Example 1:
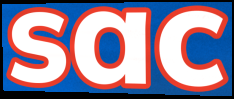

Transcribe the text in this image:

sac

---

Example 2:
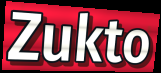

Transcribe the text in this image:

Zukto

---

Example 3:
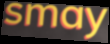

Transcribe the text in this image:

smay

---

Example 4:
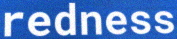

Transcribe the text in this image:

redness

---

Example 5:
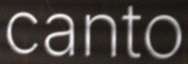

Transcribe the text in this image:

canto